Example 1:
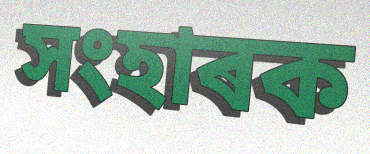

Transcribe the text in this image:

সংহাৰক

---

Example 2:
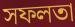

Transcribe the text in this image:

সফলতা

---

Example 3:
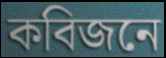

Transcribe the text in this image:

কবিজনে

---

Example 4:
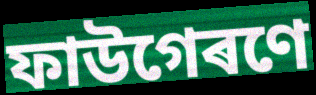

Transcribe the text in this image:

ফাউগেৰণে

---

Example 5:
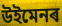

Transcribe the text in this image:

উইমেনৰ